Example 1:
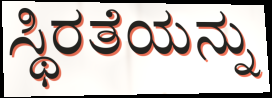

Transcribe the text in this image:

ಸ್ಥಿರತೆಯನ್ನು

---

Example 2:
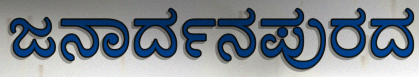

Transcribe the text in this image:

ಜನಾರ್ದನಪುರದ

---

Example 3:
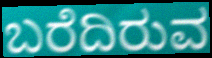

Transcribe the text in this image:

ಬರೆದಿರುವ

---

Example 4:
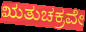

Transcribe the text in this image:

ಋತುಚಕ್ರವೇ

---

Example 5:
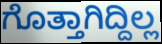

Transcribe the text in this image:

ಗೊತ್ತಾಗಿದ್ದಿಲ್ಲ